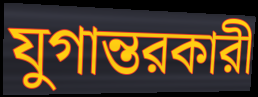
যুগান্তরকারী